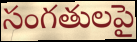
సంగతులపై